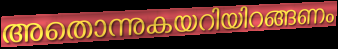
അതൊന്നുകയറിയിറങ്ങണം